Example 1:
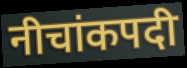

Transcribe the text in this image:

नीचांकपदी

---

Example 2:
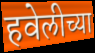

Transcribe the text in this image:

हवेलीच्या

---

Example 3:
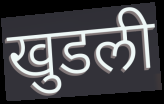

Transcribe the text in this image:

खुडली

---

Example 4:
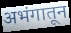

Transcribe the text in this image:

अभंगातून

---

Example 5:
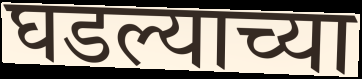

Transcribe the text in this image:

घडल्याच्या